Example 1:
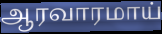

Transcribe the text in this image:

ஆரவாரமாய்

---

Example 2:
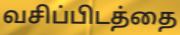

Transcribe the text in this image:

வசிப்பிடத்தை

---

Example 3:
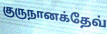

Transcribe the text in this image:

குருநானக்தேவ்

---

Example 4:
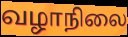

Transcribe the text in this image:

வழாநிலை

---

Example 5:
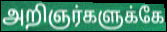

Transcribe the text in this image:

அறிஞர்களுக்கே